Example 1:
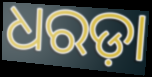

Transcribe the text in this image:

ଧରଡ଼ା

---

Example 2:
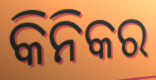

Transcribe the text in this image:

କିନିକର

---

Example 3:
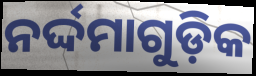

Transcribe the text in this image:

ନର୍ଦ୍ଦମାଗୁଡ଼ିକ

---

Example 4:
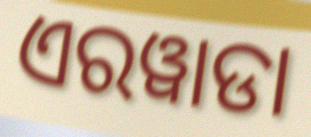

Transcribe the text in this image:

ଏରୱାଡା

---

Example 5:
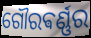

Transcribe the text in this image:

ଗୌରଵର୍ଣ୍ଣର